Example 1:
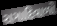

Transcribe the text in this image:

રાગાદિવાળો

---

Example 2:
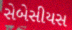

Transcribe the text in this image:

સેબેસીયસ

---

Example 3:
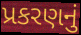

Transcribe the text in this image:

પ્રકરણનું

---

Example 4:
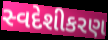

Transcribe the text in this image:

સ્વદેશીકરણ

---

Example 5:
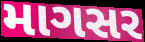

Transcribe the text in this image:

માગસર